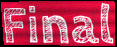
Final